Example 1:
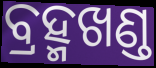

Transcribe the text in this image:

ବ୍ରହ୍ମଖଣ୍ଡ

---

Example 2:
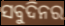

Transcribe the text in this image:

ସବୁଦିନର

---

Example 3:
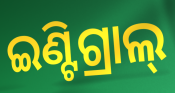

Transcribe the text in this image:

ଇଣ୍ଟିଗ୍ରାଲ୍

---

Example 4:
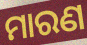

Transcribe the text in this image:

ମାରଣ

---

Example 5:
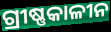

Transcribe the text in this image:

ଗ୍ରୀଷ୍ଣକାଳୀନ